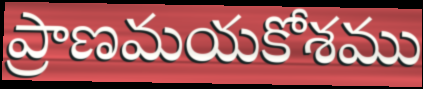
ప్రాణమయకోశము